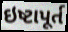
ઇષ્ટાપૂર્ત